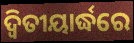
ଦ୍ବିତୀୟାର୍ଦ୍ଧରେ